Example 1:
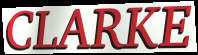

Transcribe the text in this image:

CLARKE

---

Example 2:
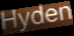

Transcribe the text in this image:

Hyden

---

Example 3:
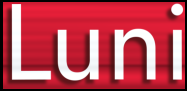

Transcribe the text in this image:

Luni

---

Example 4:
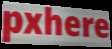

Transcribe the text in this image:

pxhere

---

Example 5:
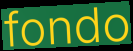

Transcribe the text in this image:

fondo